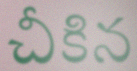
చీకిన